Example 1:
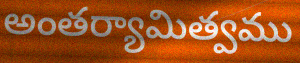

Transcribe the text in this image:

అంతర్యామిత్వము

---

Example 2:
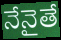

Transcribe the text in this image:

నేనైతే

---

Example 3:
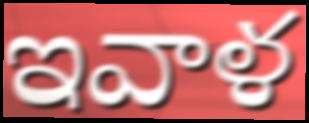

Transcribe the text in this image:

ఇవాళ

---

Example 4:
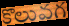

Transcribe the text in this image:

కొలువగ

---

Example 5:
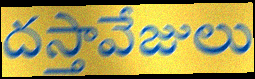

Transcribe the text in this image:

దస్తావేజులు